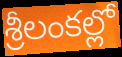
శ్రీలంకల్లో